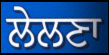
ਲੇਲਣਾ